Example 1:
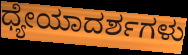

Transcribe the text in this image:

ಧ್ಯೇಯಾದರ್ಶಗಳು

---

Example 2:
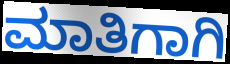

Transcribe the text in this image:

ಮಾತಿಗಾಗಿ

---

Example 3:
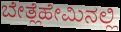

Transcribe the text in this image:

ಬೇತ್ಲೆಹೇಮಿನಲ್ಲಿ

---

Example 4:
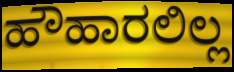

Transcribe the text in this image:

ಹೌಹಾರಲಿಲ್ಲ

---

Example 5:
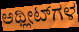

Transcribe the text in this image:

ಅಥ್ಲೀಟ್‌ಗಳ